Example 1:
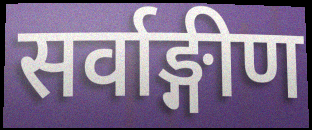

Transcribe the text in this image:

सर्वाङ्गीण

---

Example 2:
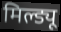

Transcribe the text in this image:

मिल्ड्यू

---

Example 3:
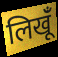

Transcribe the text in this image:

लिखूंँ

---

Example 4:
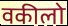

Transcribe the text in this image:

वकीलो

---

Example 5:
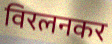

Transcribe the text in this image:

विरलनकर